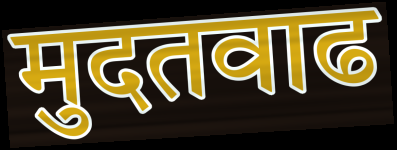
मुदतवाढ